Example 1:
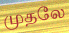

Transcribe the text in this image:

முதலே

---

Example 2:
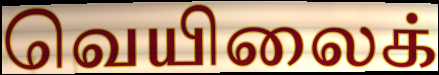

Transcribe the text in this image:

வெயிலைக்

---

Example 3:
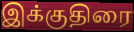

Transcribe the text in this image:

இக்குதிரை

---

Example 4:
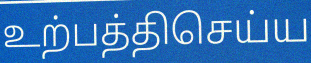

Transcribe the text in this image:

உற்பத்திசெய்ய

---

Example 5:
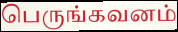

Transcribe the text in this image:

பெருங்கவனம்